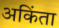
अकिंता